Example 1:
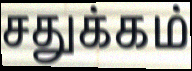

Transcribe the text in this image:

சதுக்கம்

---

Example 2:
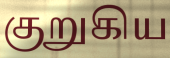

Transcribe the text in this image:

குறுகிய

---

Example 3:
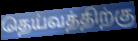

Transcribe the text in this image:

தெய்வத்திற்கு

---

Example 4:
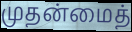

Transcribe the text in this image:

முதன்மைத்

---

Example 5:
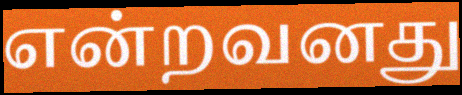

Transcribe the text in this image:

என்றவனது